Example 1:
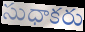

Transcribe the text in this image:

సుధాకరు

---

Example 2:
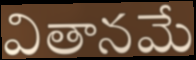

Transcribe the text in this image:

వితానమే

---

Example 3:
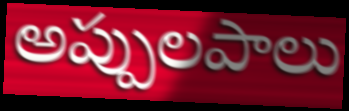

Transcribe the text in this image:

అప్పులపాలు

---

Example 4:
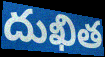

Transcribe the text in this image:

దుఖిత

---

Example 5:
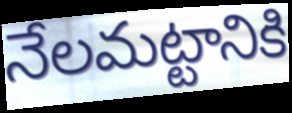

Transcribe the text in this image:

నేలమట్టానికి